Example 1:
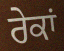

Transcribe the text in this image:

ਰੇਕਾਂ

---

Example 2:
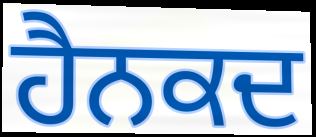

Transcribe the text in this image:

ਹੈਨਕਦ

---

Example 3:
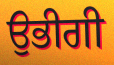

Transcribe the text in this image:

ਉਭੀਗੀ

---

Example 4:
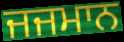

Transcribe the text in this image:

ਜਜਮਾਨ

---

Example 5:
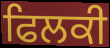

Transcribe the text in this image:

ਫਿਲਕੀ